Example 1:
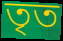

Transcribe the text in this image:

তৃত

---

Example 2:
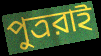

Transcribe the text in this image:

পুত্ররাই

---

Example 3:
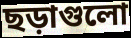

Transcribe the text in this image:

ছড়াগুলো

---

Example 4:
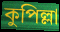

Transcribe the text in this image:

কুপিল্লা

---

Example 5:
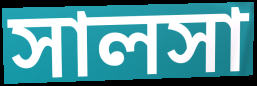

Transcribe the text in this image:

সালসা